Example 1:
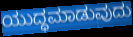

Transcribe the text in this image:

ಯುದ್ಧಮಾಡುವುದು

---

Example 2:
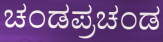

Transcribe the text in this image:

ಚಂಡಪ್ರಚಂಡ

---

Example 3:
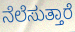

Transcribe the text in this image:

ನೆಲೆಸುತ್ತಾರೆ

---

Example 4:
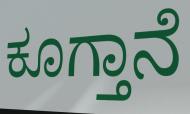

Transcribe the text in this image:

ಕೂಗ್ತಾನೆ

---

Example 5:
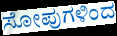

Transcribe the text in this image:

ಸೋಪುಗಳಿಂದ